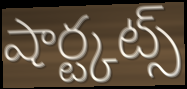
షార్ట్కట్స్